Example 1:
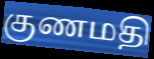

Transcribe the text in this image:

குணமதி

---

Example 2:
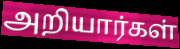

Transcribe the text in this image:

அறியார்கள்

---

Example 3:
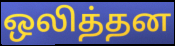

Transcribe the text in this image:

ஒலித்தன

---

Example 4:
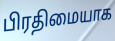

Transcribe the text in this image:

பிரதிமையாக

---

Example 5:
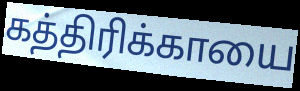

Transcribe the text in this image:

கத்திரிக்காயை